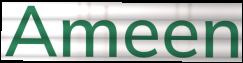
Ameen